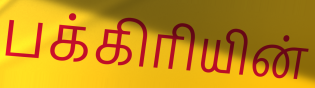
பக்கிரியின்